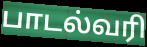
பாடல்வரி